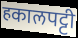
हकालपट्टी